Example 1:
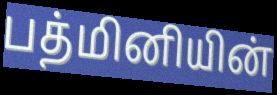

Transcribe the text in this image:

பத்மினியின்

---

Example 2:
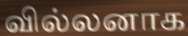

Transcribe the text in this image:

வில்லனாக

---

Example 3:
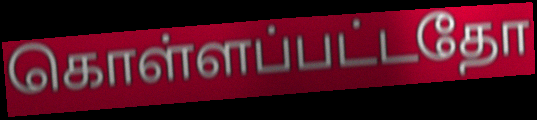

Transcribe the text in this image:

கொள்ளப்பட்டதோ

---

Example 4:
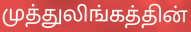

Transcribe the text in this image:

முத்துலிங்கத்தின்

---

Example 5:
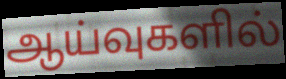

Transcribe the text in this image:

ஆய்வுகளில்